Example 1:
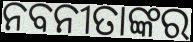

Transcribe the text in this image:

ନବନୀତାଙ୍କର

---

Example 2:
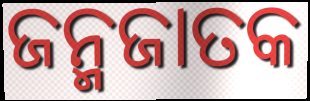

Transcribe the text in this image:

ଜନ୍ମଜାତକ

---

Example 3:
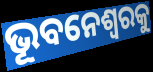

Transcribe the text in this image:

ଭୂବନେଶ୍ୱରକୁ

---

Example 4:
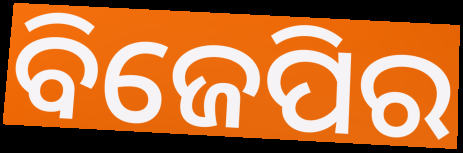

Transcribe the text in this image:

ବିଜେପିର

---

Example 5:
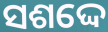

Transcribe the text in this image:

ସଶଦ୍ଦେ